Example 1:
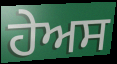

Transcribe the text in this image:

ਹੇਅਸ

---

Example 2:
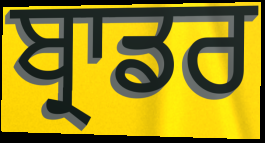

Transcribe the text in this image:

ਬ੍ਰਾਡਰ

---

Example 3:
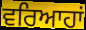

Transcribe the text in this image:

ਵਰਿਆਹਾਂ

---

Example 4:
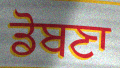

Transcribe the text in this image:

ਡੋਬਣਾ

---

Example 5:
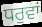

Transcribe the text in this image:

ਧਰੁਵਾਂ